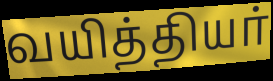
வயித்தியர்